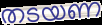
തടയണ